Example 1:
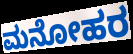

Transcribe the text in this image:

ಮನೋಹರ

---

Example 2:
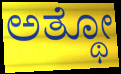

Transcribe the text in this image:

ಅತ್ಥೋ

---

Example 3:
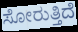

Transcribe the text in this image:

ಸೋರುತ್ತಿದೆ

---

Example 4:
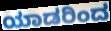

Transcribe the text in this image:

ಯಾಡರಿಂದ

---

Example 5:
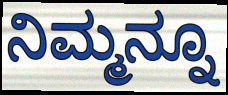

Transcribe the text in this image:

ನಿಮ್ಮನ್ನೂ